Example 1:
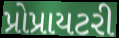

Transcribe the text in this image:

પ્રોપ્રાયટરી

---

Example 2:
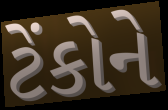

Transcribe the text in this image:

ટેંકોને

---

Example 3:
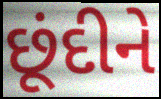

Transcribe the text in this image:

છૂંદીને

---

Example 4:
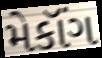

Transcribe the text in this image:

મેકૉંગ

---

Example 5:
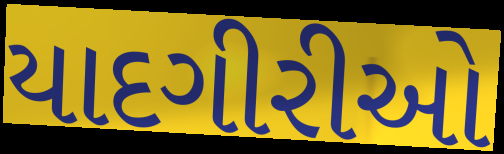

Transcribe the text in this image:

યાદગીરીઓ